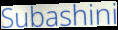
Subashini